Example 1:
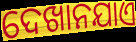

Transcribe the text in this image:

ଦେଖାନଯାଏ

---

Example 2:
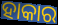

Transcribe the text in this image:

ହାକାର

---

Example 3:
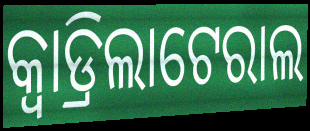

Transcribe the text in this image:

କ୍ୱାଡ୍ରିଲାଟେରାଲ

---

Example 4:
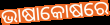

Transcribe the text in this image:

ଭାଷାକୋଷରେ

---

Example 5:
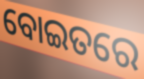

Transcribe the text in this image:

ବୋଇତରେ